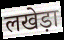
लखेड़ा